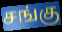
சங்கு